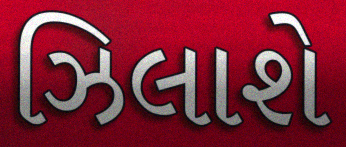
ઝિલાશે